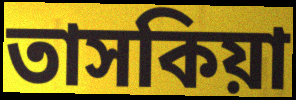
তাসকিয়া